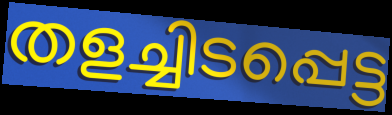
തളച്ചിടപ്പെട്ട